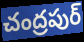
చంద్రపుర్